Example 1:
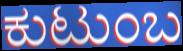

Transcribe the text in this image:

ಕುಟುಂಬ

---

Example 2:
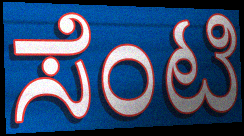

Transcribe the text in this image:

ಸೆಂಟಿ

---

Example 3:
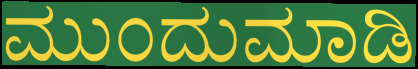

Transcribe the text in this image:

ಮುಂದುಮಾಡಿ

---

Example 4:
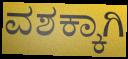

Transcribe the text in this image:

ವಶಕ್ಕಾಗಿ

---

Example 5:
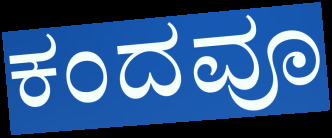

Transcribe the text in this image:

ಕಂದವೂ